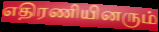
எதிரணியினரும்